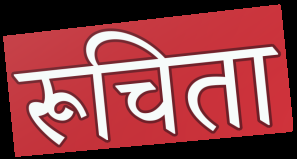
रूचिता